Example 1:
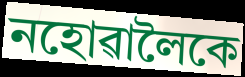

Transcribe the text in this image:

নহোৱালৈকে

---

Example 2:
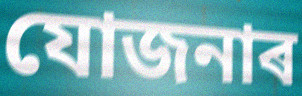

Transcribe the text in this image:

যোজনাৰ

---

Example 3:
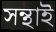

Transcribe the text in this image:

সন্থাই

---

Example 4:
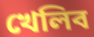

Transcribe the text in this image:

খেলিব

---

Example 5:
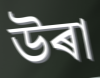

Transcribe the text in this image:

উৰা